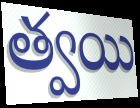
త్వయి